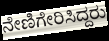
ನೇಣಿಗೇರಿಸಿದ್ದರು